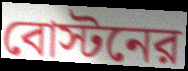
বোস্টনের